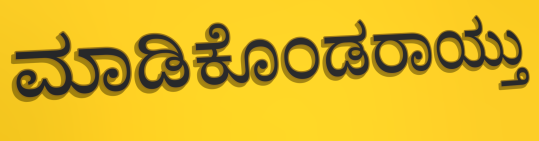
ಮಾಡಿಕೊಂಡರಾಯ್ತು